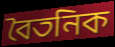
বৈতনিক